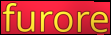
furore